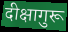
दीक्षागुरू